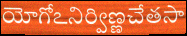
యోగోఽనిర్విణ్ణచేతసా